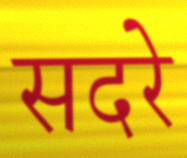
सदरे